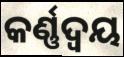
କର୍ଣ୍ଣଦ୍ୱୟ